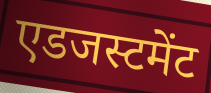
एडजस्टमेंट